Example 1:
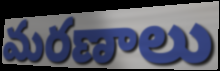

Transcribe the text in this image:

మరణాలు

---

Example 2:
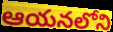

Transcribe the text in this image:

ఆయనలోని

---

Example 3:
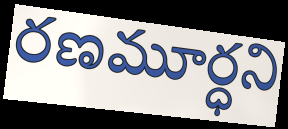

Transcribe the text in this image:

రణమూర్ధని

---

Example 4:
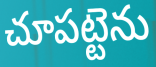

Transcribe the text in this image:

చూపట్టెను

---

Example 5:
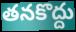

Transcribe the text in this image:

తనకొద్దు